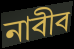
নাবীব